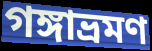
গঙ্গাভ্রমণ